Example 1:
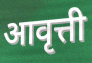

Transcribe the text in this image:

आवृत्ती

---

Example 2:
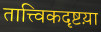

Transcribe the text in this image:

तात्त्विकदृष्टय़ा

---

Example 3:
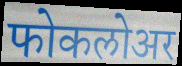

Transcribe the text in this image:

फोकलोअर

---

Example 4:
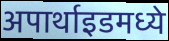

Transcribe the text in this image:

अपार्थाइडमध्ये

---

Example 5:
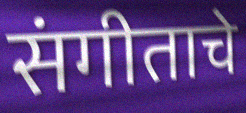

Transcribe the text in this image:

संगीताचे